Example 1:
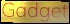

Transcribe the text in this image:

Gadget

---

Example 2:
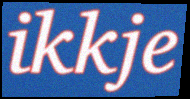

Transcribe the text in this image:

ikkje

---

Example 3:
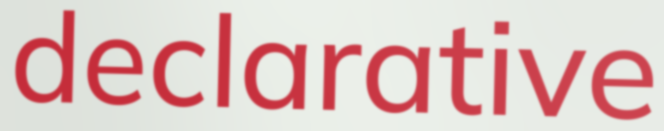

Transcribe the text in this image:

declarative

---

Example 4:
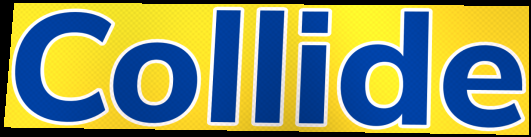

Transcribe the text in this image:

Collide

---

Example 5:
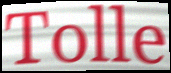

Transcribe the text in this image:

Tolle